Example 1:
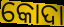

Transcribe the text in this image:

କୋଦା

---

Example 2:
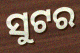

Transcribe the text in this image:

ସୁଟର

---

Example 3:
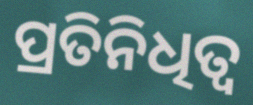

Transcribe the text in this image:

ପ୍ରତିନିଧିତ୍ୱ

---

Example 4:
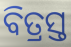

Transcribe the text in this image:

ବିତ୍ରସ୍ତ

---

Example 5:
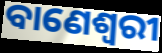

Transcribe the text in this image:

ବାଣେଶ୍ୱରୀ